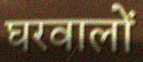
घरवालों